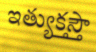
ఇత్యుక్తస్తౌ